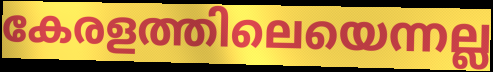
കേരളത്തിലെയെന്നല്ല